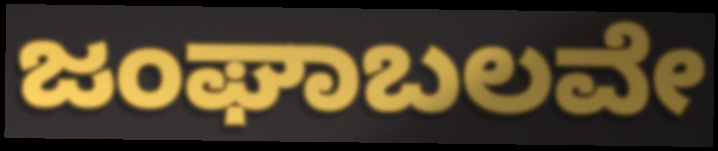
ಜಂಘಾಬಲವೇ